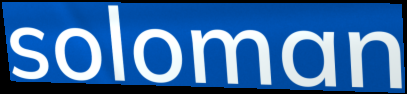
soloman